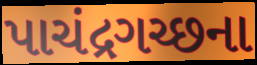
પાચંદ્રગચ્છના